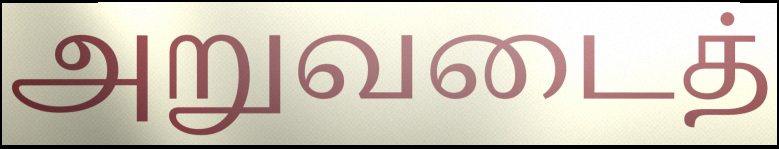
அறுவடைத்